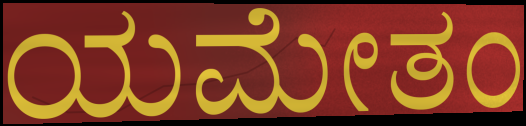
ಯಮೇತಂ